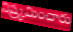
నిష్ర్కమించారు